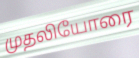
முதலியோரை